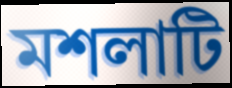
মশলাটি